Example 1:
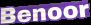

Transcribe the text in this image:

Benoor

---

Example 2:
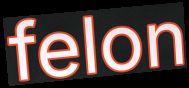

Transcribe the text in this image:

felon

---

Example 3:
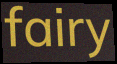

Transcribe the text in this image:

fairy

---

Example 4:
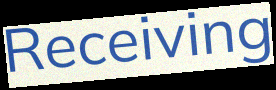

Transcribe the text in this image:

Receiving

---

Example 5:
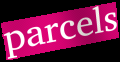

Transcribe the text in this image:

parcels